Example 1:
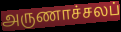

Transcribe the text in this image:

அருணாச்சலப்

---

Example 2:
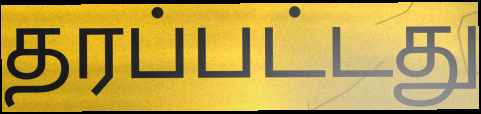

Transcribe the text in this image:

தரப்பட்டது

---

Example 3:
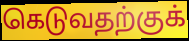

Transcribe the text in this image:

கெடுவதற்குக்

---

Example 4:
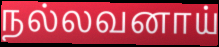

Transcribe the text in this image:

நல்லவனாய்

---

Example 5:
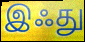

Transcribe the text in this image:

இஃது